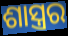
ଶାସ୍ତ୍ରର